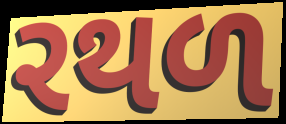
રથળ